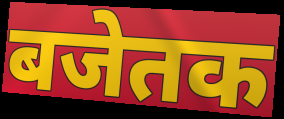
बजेतक